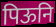
पिऊनि